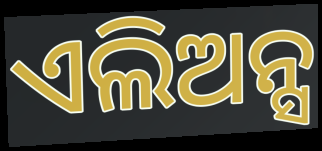
ଏଲିଅନ୍ସ